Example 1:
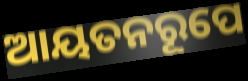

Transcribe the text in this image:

ଆୟତନରୂପେ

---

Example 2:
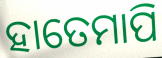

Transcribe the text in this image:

ହାତେମାପି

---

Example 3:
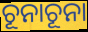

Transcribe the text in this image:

ଚୂନାଚୂନା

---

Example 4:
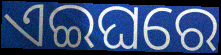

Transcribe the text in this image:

ଏଇଘରେ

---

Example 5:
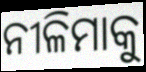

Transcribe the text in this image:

ନୀଳିମାକୁ